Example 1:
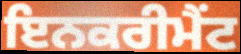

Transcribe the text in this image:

ਇਨਕਰੀਮੈਂਟ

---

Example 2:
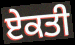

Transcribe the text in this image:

ਏਕਤੀ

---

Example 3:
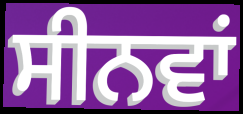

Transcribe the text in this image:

ਸੀਨਵਾਂ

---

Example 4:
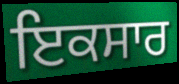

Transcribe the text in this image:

ਇਕਸਾਰ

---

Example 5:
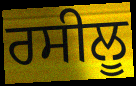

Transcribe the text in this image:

ਰਸੀਲੂ